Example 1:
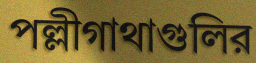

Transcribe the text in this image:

পল্লীগাথাগুলির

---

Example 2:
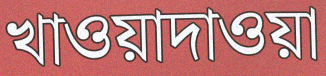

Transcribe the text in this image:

খাওয়াদাওয়া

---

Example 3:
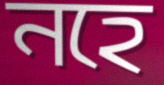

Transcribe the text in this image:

নহে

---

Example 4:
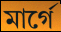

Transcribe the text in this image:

মার্গে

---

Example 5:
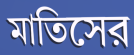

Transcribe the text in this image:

মাতিসের